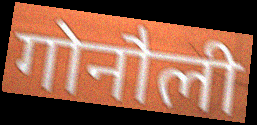
गोनौली